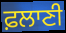
ਫ਼ਲਾਣੀ